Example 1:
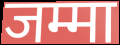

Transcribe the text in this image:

जम्मा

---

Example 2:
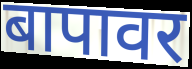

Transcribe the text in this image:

बापावर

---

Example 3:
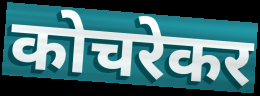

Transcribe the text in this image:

कोचरेकर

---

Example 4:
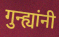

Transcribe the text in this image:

गुन्ह्यांनी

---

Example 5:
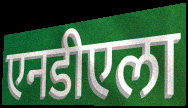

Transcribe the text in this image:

एनडीएला